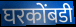
घरकोंबडी